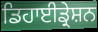
ਡਿਹਾਈਡ੍ਰੇਸ਼ਨ